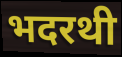
भदरथी